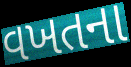
વખતના